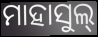
ମାହାସୁଲ୍